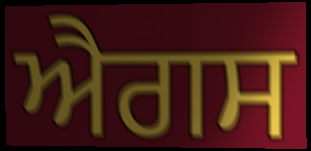
ਐਗਸ